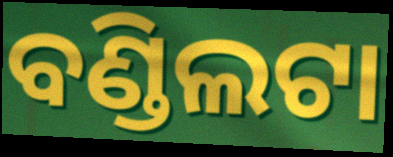
ବଣ୍ଡିଲଟା